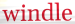
windle